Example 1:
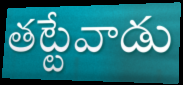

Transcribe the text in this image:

తట్టేవాడు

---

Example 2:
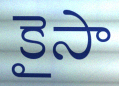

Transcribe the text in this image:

కైసా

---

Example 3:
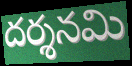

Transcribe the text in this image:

దర్శనమి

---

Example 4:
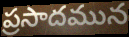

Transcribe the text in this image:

ప్రసాదమున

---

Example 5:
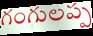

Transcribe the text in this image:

గంగులప్ప